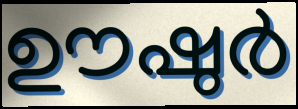
ഊഷുർ